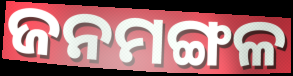
ଜନମଙ୍ଗଳ